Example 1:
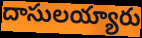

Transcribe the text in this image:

దాసులయ్యారు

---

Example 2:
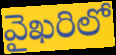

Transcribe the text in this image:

వైఖరిలో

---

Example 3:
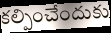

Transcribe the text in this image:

కల్పించేందుకు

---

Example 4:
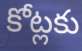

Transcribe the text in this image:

కోట్లకు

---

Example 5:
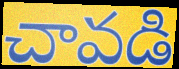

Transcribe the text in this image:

చావడి